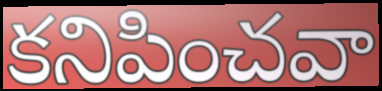
కనిపించవా